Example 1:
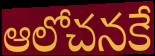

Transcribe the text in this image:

ఆలోచనకే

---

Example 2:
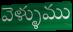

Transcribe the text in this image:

వెళ్ళుము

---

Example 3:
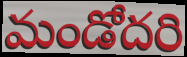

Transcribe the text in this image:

మండోదరి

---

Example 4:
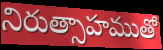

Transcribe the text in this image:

నిరుత్సాహముతో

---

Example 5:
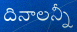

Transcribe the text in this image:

దినాలన్నీ